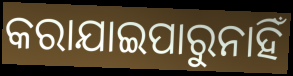
କରାଯାଇପାରୁନାହିଁ